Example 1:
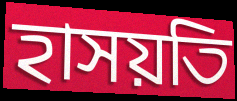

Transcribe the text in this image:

হাসয়তি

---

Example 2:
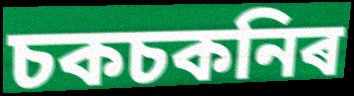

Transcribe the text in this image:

চকচকনিৰ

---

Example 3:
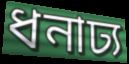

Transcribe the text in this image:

ধনাঢ্য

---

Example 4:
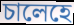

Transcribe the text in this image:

চালেহে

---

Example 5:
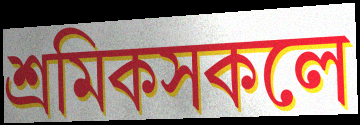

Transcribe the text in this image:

শ্ৰমিকসকলে